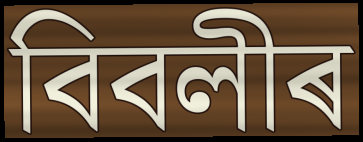
বিবলীৰ